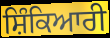
ਸ਼ਿੰਕਿਆਰੀ